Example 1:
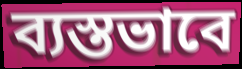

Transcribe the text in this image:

ব্যস্তভাবে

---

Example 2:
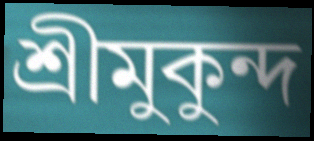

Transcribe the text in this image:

শ্রীমুকুন্দ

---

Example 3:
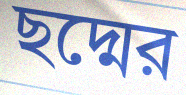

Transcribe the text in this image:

ছদ্মের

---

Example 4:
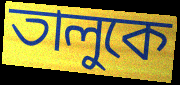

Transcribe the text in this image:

তালুকে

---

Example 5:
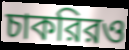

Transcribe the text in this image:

চাকরিরও